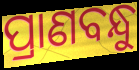
ପ୍ରାଣବନ୍ଧୁ